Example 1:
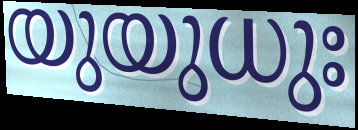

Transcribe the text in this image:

യുയുധുഃ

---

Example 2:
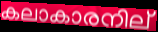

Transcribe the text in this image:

കലാകാരനില്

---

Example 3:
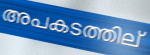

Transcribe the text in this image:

അപകടത്തില്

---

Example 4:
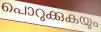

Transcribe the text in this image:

പൊറുക്കുകയും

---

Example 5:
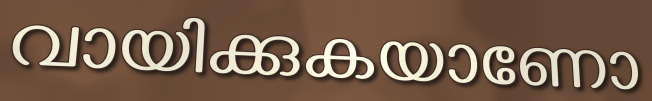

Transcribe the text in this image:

വായിക്കുകയാണോ